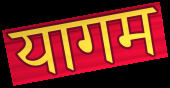
यागम